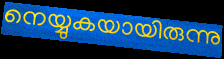
നെയ്യുകയായിരുന്നു